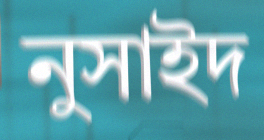
নুসাইদ